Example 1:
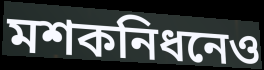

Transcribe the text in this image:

মশকনিধনেও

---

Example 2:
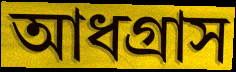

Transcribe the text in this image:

আধগ্রাস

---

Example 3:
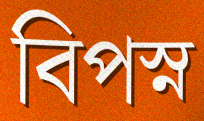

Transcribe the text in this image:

বিপস্ন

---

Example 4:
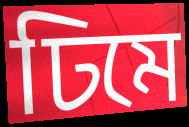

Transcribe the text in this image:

ঢিমে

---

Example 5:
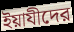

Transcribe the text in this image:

ইয়াযীদের